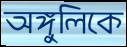
অঙ্গুলিকে